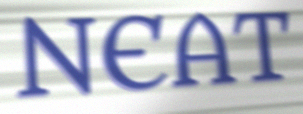
NEAT